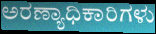
ಅರಣ್ಯಾಧಿಕಾರಿಗಳು